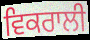
ਵਿਕਰਾਲੀ